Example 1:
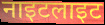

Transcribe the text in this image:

नाइटलाइट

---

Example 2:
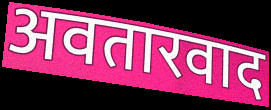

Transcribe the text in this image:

अवतारवाद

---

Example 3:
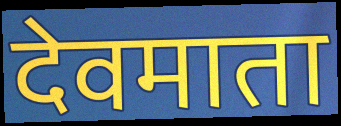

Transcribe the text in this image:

देवमाता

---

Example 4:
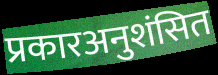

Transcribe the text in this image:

प्रकारअनुशंसित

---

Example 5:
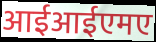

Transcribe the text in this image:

आईआईएमए